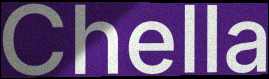
Chella